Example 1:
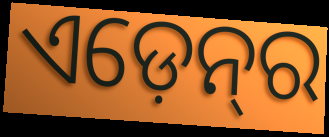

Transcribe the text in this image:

ଏଡ଼େନ୍‍ର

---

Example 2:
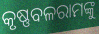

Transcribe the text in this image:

କୃଷ୍ଣବଳରାମଙ୍କୁ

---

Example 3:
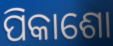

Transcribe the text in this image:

ପିକାଶୋ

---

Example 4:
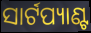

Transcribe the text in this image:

ସାର୍ଟପ୍ୟାଣ୍ଟ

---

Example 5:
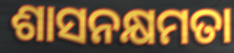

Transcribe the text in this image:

ଶାସନକ୍ଷମତା